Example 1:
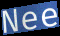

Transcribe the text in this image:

Nee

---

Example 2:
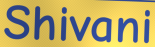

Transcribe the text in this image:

Shivani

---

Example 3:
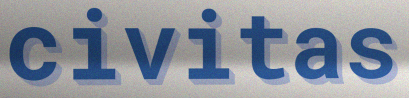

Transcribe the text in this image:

civitas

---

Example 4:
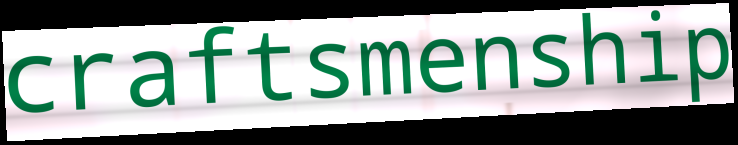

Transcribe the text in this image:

craftsmenship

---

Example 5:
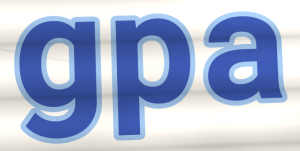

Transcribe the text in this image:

gpa